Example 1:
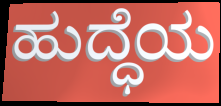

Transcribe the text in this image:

ಹುದ್ಧೆಯ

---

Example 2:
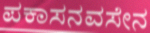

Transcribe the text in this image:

ಪಕಾಸನವಸೇನ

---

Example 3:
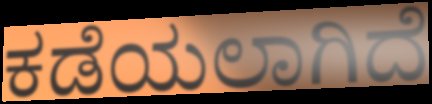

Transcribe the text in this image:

ಕಡೆಯಲಾಗಿದೆ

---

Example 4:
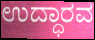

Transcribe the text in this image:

ಉದ್ಧಾರವ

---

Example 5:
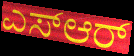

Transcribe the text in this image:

ಎಸ್ಆರ್